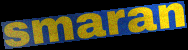
smaran